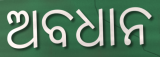
ଅବଧାନ